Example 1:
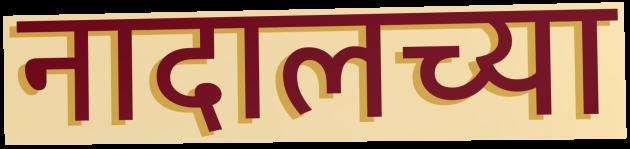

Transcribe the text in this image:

नादालच्या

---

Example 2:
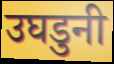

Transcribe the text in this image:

उघडुनी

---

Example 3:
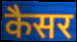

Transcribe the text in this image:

कैसर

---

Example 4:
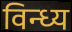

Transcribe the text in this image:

विन्ध्य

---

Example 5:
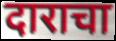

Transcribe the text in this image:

दाराचा